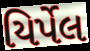
યિર્પેલ